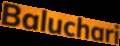
Baluchari